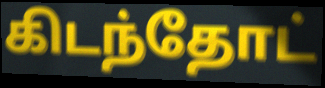
கிடந்தோட்